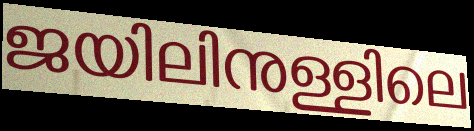
ജയിലിനുള്ളിലെ